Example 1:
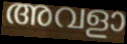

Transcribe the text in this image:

അവളാ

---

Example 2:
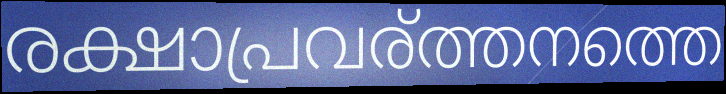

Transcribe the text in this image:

രക്ഷാപ്രവര്ത്തനത്തെ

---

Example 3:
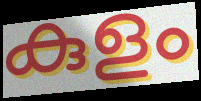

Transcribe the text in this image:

കുളം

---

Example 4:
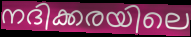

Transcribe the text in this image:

നദിക്കരയിലെ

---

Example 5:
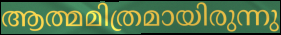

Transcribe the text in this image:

ആത്മമിത്രമായിരുന്നു